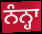
ਨੰਨ੍ਹਾ